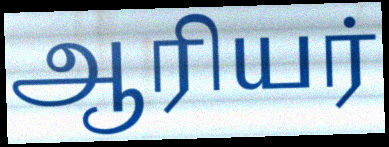
ஆரியர்